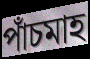
পাঁচমাহ